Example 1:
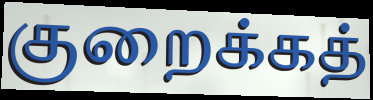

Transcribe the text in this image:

குறைக்கத்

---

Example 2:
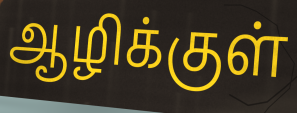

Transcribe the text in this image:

ஆழிக்குள்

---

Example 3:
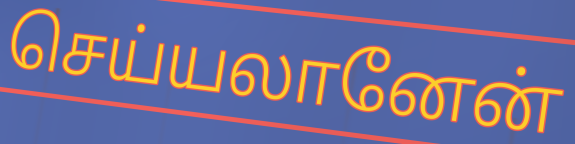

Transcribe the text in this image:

செய்யலானேன்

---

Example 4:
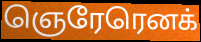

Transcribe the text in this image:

ஞெரேரெனக்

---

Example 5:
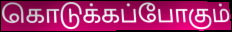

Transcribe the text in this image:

கொடுக்கப்போகும்